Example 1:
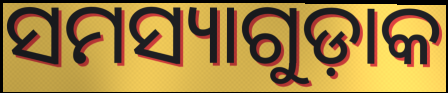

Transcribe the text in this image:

ସମସ୍ୟାଗୁଡ଼ାକ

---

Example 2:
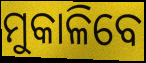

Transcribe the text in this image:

ମୁକାଳିବେ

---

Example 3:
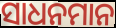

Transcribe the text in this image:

ସାଧନମାନ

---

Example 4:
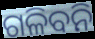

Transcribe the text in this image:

ଗଳିବନି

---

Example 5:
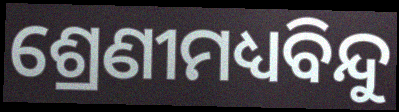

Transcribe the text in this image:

ଶ୍ରେଣୀମଧ୍ୟବିନ୍ଦୁ